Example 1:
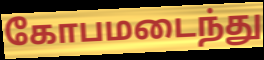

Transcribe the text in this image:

கோபமடைந்து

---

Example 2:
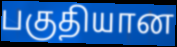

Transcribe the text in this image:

பகுதியான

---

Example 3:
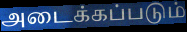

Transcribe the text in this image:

அடைக்கப்படும்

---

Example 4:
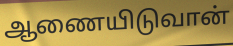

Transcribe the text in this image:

ஆணையிடுவான்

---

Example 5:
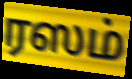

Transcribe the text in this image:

ரஸம்